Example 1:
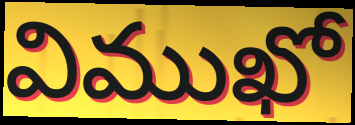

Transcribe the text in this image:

విముఖో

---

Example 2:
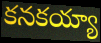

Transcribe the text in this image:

కనకయ్యా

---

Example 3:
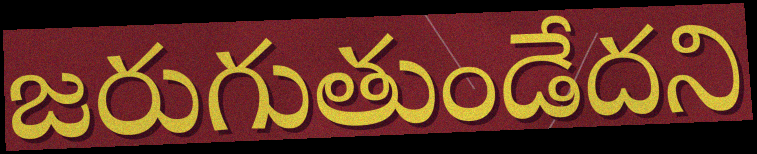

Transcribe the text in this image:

జరుగుతుండేదని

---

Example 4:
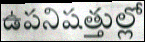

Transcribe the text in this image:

ఉపనిషత్తుల్లో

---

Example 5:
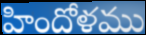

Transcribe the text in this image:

హిందోళము